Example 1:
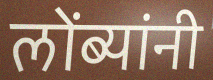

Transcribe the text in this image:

लोंब्यांनी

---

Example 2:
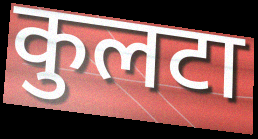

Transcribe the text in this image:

कुलटा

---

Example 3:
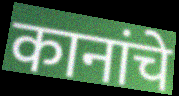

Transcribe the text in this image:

कानांचे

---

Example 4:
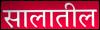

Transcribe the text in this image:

सालातील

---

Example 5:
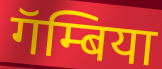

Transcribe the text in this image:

गॅम्बिया